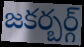
జకర్బర్గ్